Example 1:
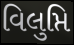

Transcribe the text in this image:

વિલુપ્તિ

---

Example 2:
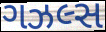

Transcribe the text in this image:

ગઝલ્સ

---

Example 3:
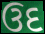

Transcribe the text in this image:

ઉદ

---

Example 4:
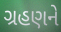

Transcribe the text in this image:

ગ્રહણને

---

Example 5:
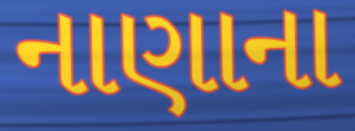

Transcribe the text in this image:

નાણાના